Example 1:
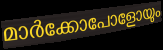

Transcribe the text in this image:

മാർക്കോപോളോയും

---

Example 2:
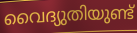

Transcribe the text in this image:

വൈദ്യുതിയുണ്ട്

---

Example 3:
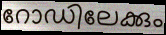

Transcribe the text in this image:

റോഡിലേക്കും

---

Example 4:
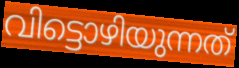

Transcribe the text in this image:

വിട്ടൊഴിയുന്നത്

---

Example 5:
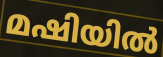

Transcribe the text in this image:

മഷിയിൽ